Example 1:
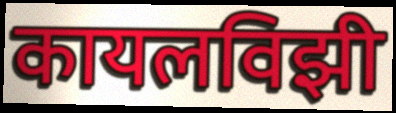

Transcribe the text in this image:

कायलविझी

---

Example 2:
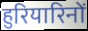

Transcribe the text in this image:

हुरियारिनों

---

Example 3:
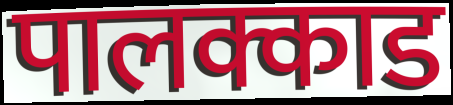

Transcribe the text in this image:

पालक्काड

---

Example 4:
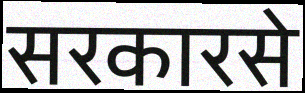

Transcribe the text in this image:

सरकारसे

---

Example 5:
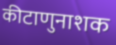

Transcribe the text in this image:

कीटाणुनाशक